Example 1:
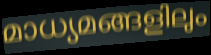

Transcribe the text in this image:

മാധ്യമങ്ങളിലും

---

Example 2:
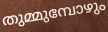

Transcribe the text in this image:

തുമ്മുമ്പോഴും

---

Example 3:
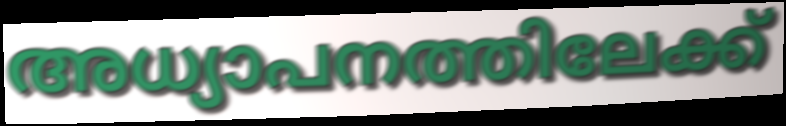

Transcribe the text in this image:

അധ്യാപനത്തിലേക്ക്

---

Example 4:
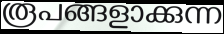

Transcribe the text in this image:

രൂപങ്ങളാക്കുന്ന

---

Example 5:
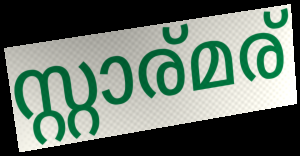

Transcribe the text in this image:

സ്റ്റാര്മര്